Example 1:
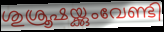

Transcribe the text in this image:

ശുശ്രൂഷയ്ക്കുംവേണ്ടി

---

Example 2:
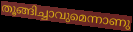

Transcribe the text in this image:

തൂങ്ങിച്ചാവുമെന്നാണു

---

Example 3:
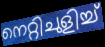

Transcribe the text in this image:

നെറ്റിചുളിച്ച്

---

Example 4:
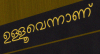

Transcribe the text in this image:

ഉള്ളൂവെന്നാണ്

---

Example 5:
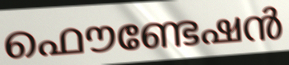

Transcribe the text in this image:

ഫൌണ്ടേഷൻ